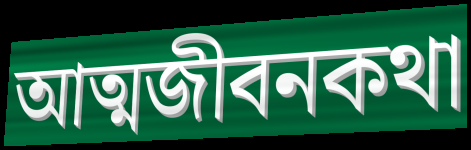
আত্মজীবনকথা